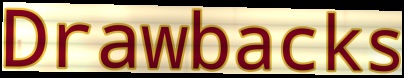
Drawbacks